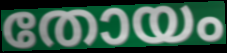
തോയം